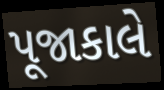
પૂજાકાલે